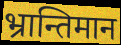
भ्रान्तिमान